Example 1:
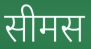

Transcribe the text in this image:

सीमस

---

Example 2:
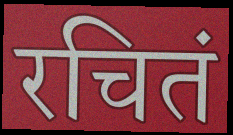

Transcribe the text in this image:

रचितं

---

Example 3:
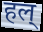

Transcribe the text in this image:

हल्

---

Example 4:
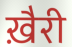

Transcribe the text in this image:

ख़ैरी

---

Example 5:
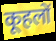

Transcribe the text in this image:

कूहलों